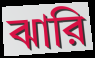
ঝারি